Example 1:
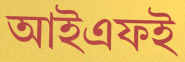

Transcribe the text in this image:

আইএফই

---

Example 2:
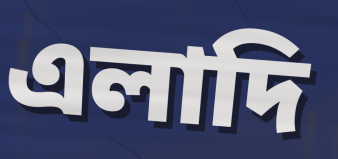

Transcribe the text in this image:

এলাদি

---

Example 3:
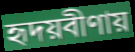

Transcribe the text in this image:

হৃদয়বীণায়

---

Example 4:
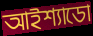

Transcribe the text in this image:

আইশ্যাডো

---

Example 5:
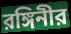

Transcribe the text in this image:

রঙ্গিনীর